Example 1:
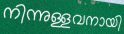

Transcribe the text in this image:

നിന്നുള്ളവനായി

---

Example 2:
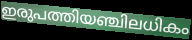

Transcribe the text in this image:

ഇരുപത്തിയഞ്ചിലധികം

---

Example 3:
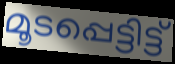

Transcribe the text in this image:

മൂടപ്പെട്ടിട്ട്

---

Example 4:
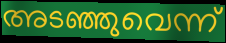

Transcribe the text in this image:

അടഞ്ഞുവെന്ന്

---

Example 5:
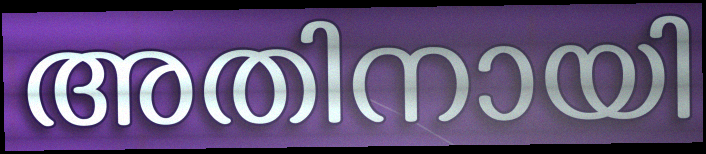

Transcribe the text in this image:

അതിനായി